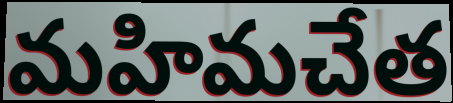
మహిమచేత